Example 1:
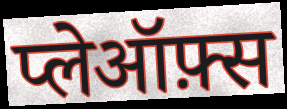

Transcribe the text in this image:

प्लेऑफ़्स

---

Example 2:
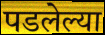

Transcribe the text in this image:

पडलेल्या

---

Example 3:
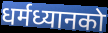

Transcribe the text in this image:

धर्मध्यानको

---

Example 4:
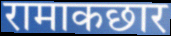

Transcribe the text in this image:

रामाकछार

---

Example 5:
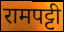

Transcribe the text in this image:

रामपट्टी